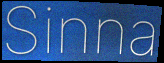
Sinna